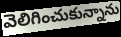
వెలిగించుకున్నాను